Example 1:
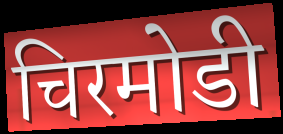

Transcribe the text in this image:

चिरमोडी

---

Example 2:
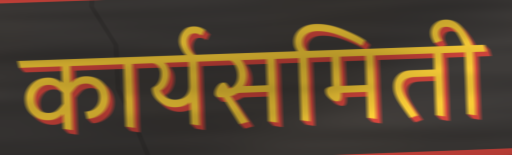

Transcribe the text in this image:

कार्यसमिती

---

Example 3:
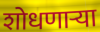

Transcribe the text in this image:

शोधणाऱ्या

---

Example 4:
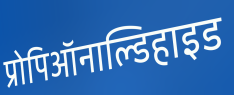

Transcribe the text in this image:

प्रोपिऑनाल्डिहाइड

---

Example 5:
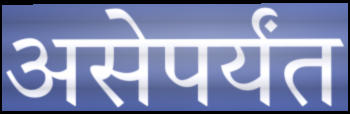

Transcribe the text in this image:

असेपर्यंत